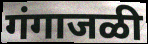
गंगाजळी